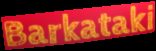
Barkataki